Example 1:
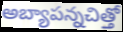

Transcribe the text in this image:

అబ్యాపన్నచిత్తో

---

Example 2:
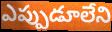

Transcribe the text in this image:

ఎప్పుడూలేని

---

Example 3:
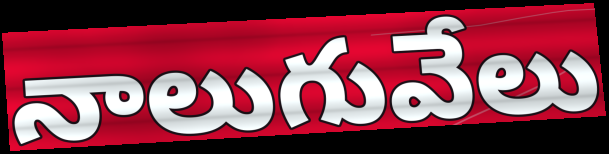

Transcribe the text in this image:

నాలుగువేలు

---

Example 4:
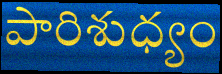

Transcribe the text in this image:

పారిశుధ్యం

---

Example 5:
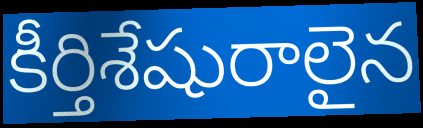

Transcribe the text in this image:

కీర్తిశేషురాలైన